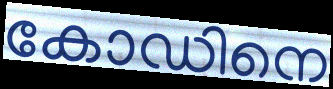
കോഡിനെ